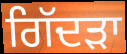
ਗਿੱਦੜਾ